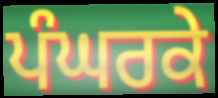
ਪੰਘਰਕੇ